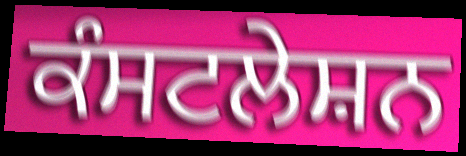
ਕੰਸਟਲੇਸ਼ਨ